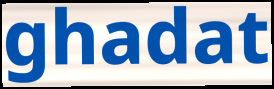
ghadat